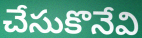
చేసుకొనేవి